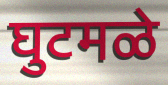
घुटमळे